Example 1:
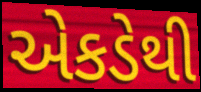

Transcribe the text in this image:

એકડેથી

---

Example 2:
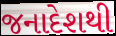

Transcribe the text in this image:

જનાદેશથી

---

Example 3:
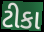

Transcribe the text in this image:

ટીકા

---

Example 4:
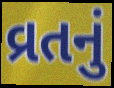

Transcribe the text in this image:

વ્રતનું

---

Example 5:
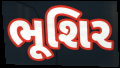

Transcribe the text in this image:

ભૂશિર